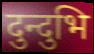
दुन्दुभि